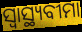
ସ୍ଵାସ୍ଥ୍ୟବୀମା